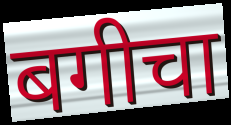
बगीचा